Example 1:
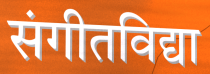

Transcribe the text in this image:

संगीतविद्या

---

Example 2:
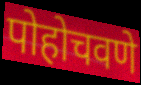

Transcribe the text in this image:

पोहोचवणे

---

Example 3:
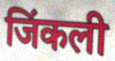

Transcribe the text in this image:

जिंकली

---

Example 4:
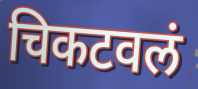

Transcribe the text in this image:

चिकटवलं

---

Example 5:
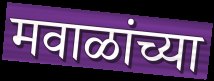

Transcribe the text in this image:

मवाळांच्या